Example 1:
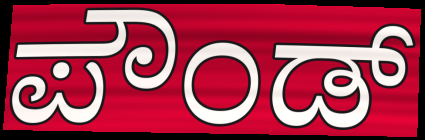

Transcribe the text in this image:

ಪೌಂಡ್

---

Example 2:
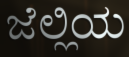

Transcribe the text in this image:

ಜೆಲ್ಲಿಯ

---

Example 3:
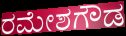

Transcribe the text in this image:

ರಮೇಶಗೌಡ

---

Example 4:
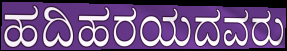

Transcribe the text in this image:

ಹದಿಹರಯದವರು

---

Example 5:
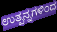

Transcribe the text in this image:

ಉತ್ಪನ್ನಗಳಿಂದ